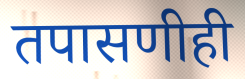
तपासणीही